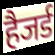
हैजर्ड